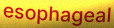
esophageal